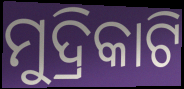
ମୁଦ୍ରିକାଟି